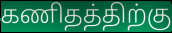
கணிதத்திற்கு